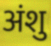
अंशु